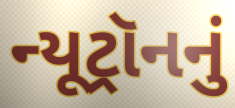
ન્યૂટ્રૉનનું